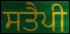
ਸਤੈਪੀ